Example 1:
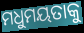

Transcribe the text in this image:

ମଧୁମୟତାକୁ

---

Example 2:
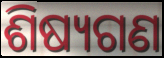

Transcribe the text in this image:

ଶିଷ୍ୟଗଣ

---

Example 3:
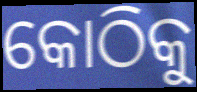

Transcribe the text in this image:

କୋଠିକୁ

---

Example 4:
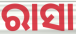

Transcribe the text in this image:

ରାସା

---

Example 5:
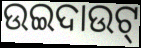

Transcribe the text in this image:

ଉଇଦାଉଟ୍